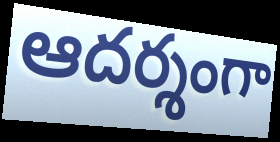
ఆదర్శంగా